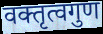
वक्तृत्वगुण